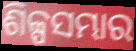
ଶିଳ୍ପସମ୍ଭାର